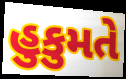
હુકુમતે